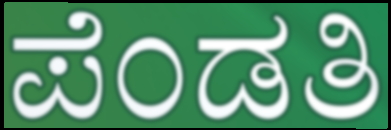
ಪೆಂಡತಿ